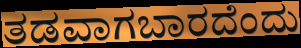
ತಡವಾಗಬಾರದೆಂದು